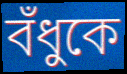
বঁধুকে